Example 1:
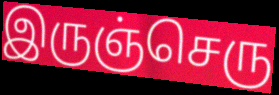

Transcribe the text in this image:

இருஞ்செரு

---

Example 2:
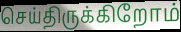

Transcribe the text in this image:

செய்திருக்கிறோம்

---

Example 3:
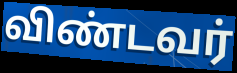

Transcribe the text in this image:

விண்டவர்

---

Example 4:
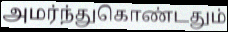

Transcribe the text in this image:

அமர்ந்துகொண்டதும்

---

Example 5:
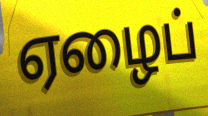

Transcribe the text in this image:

ஏழைப்